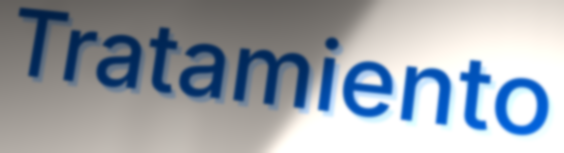
Tratamiento